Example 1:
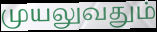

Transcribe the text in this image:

முயலுவதும்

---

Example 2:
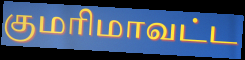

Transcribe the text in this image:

குமரிமாவட்ட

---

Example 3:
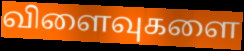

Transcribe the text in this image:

விளைவுகளை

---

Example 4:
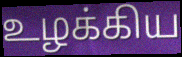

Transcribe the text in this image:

உழக்கிய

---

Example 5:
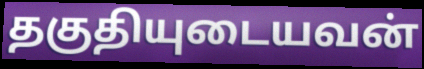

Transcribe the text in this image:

தகுதியுடையவன்